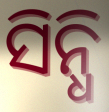
ସିନ୍ଧି